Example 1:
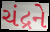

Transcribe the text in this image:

ચંદ્રને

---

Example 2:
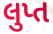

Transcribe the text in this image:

લુપ્ત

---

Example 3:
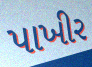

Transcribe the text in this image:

પાખીર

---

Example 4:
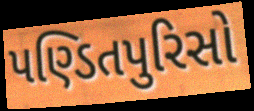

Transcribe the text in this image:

પણ્ડિતપુરિસો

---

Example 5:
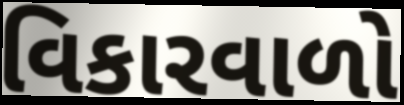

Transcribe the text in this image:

વિકારવાળો